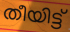
തീയിട്ട്